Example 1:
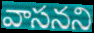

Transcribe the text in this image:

వాసనని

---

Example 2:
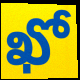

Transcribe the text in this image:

ఖో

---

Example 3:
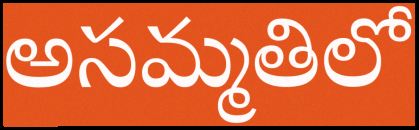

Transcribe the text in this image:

అసమ్మతిలో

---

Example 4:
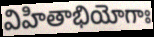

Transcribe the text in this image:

విహితాభియోగాః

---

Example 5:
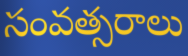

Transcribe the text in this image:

సంవత్సరాలు